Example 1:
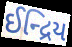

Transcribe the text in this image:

ઈન્દ્રિય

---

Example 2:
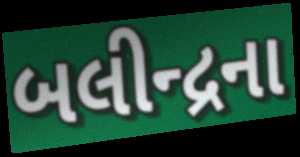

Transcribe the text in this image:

બલીન્દ્રના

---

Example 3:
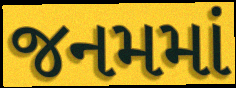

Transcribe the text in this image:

જનમમાં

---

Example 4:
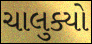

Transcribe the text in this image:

ચાલુક્યો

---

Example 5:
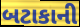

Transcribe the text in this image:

બટાકાની